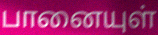
பானையுள்